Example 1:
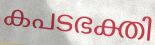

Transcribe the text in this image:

കപടഭക്തി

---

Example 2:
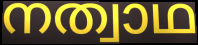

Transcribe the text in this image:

നത്വാഥ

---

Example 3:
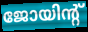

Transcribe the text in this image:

ജോയിന്റ്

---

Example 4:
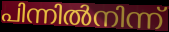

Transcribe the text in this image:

പിന്നിൽനിന്ന്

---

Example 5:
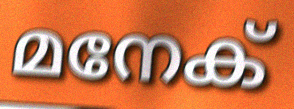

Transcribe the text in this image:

മനേക്